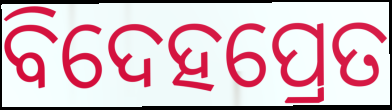
ବିଦେହପ୍ରେତ